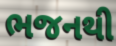
ભજનથી